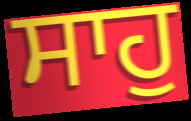
ਸਾਹੁ